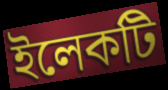
ইলেকটি